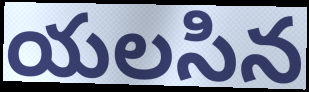
యలసిన